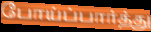
போய்ப்பார்த்து